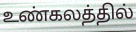
உண்கலத்தில்